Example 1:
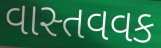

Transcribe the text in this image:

વાસ્તવવક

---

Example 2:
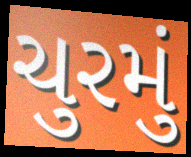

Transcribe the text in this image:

ચુરમું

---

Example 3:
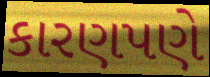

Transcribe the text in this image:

કારણપણે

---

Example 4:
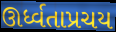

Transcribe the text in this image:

ઊર્ધ્વતાપ્રચય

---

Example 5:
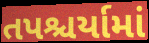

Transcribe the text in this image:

તપશ્ચર્યામાં